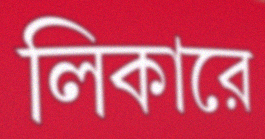
লিকারে